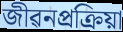
জীৱনপ্ৰক্ৰিয়া